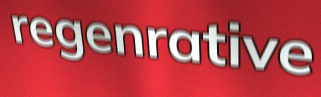
regenrative